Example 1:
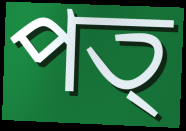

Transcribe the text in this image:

পত্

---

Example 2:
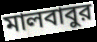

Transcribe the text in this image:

মালবাবুর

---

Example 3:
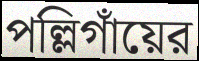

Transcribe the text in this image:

পল্লিগাঁয়ের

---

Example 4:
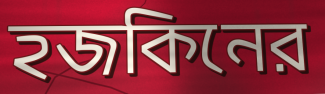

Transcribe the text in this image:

হজকিনের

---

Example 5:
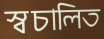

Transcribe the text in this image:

স্বচালিত